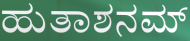
ಹುತಾಶನಮ್